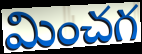
మించగ